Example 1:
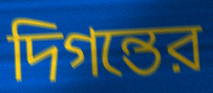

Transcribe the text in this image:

দিগন্তের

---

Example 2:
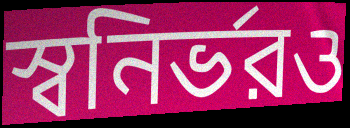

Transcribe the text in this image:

স্বনির্ভরও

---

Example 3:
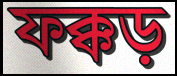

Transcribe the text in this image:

ফক্কড়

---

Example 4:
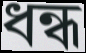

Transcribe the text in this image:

ধন্ধ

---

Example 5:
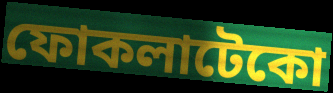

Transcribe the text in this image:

ফোকলাটেকো